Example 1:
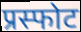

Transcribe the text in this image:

प्रस्फोट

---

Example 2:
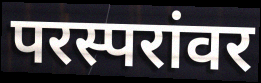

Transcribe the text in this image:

परस्परांवर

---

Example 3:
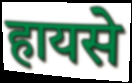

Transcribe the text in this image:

हायसे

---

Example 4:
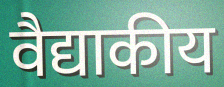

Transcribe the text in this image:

वैद्याकीय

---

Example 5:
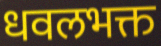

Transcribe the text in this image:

धवलभक्त